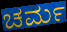
ಚರ್ಮ